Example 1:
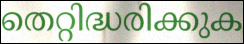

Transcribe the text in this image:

തെറ്റിദ്ധരിക്കുക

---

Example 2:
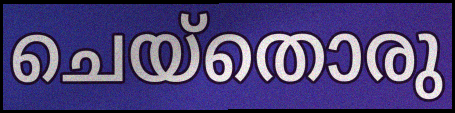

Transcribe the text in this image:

ചെയ്തൊരു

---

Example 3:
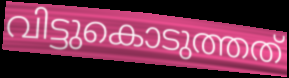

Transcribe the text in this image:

വിട്ടുകൊടുത്തത്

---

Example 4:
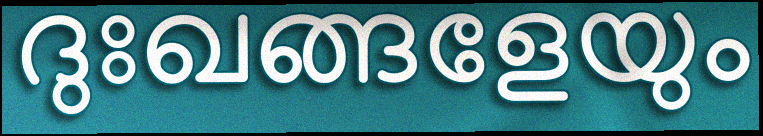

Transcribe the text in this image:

ദുഃഖങ്ങളേയും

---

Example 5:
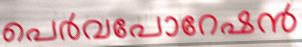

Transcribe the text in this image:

പെർവപോറേഷൻ